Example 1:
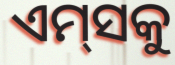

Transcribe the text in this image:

ଏମ୍‌ସକୁ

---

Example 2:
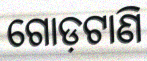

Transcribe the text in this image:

ଗୋଡ଼ଟାଣି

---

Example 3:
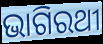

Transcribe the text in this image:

ଭାଗିରଥୀ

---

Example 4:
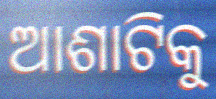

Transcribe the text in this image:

ଆଶାଟିକୁ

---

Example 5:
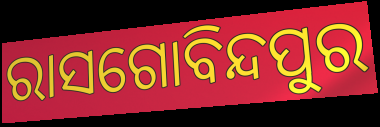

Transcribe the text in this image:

ରାସଗୋବିନ୍ଦପୁର